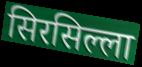
सिरसिल्ला